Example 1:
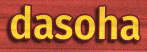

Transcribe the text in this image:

dasoha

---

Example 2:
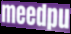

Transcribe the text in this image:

meedpu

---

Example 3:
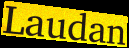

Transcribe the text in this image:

Laudan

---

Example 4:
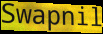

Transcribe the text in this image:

Swapnil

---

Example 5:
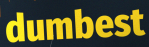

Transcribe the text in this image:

dumbest